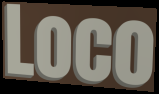
Loco